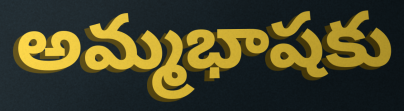
అమ్మభాషకు